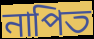
নাপিত